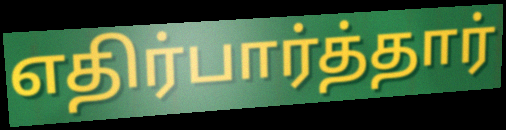
எதிர்பார்த்தார்